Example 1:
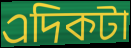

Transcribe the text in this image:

এদিকটা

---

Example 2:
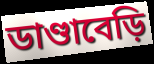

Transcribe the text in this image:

ডাণ্ডাবেড়ি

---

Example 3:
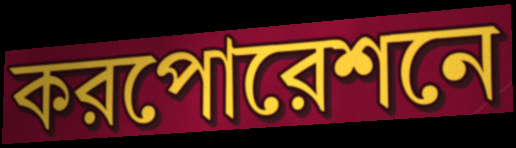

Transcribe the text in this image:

করপোরেশনে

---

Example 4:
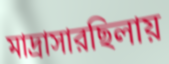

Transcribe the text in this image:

মাদ্রাসারছিলায়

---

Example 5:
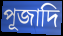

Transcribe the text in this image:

পূজাদি